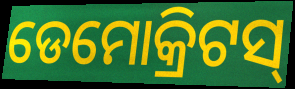
ଡେମୋକ୍ରିଟସ୍